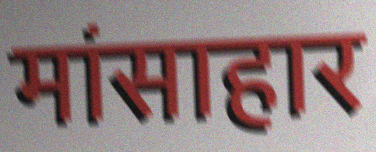
मांसाहार